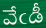
వేఁడీ